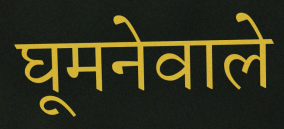
घूमनेवाले